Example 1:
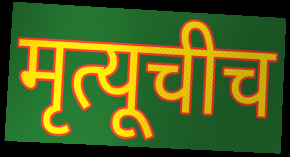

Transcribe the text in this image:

मृत्यूचीच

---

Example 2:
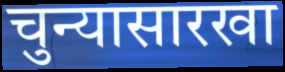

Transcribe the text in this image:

चुन्यासारखा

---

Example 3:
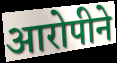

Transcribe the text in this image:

आरोपीने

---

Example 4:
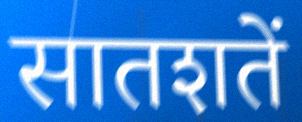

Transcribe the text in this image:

सातशतें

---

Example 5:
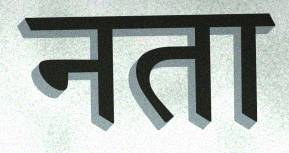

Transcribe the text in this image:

नता